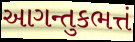
આગન્તુકભત્તં